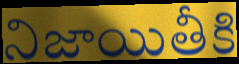
నిజాయితీకి